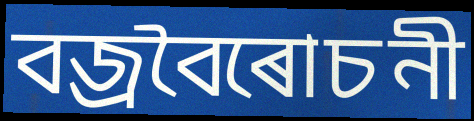
বজ্ৰবৈৰোচনী